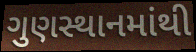
ગુણસ્થાનમાંથી